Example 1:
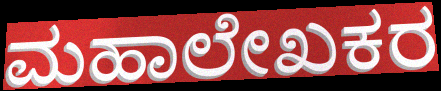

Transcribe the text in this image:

ಮಹಾಲೇಖಕರ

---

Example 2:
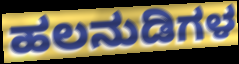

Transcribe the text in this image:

ಹಲನುಡಿಗಳ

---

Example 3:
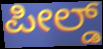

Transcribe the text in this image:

ಪೀಲ್ಡ್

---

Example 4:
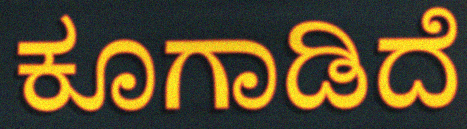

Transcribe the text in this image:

ಕೂಗಾಡಿದೆ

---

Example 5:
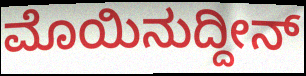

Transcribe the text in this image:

ಮೊಯಿನುದ್ದೀನ್